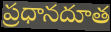
ప్రధానదూత